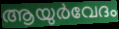
ആയുർവേദം